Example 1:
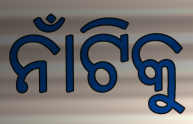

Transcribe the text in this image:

ନାଁଟିକୁ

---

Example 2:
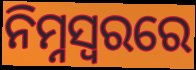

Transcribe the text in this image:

ନିମ୍ନସ୍ୱରରେ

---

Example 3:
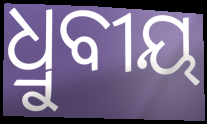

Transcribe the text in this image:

ଧ୍ରୁବୀୟ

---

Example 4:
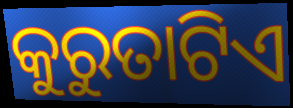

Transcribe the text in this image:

କୁରୁତାଟିଏ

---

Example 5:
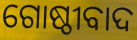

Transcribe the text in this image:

ଗୋଷ୍ଠୀବାଦ